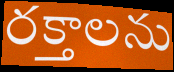
రక్తాలను